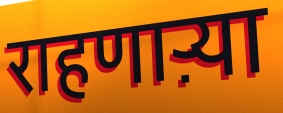
राहणाऱ्‍या